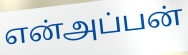
என்அப்பன்